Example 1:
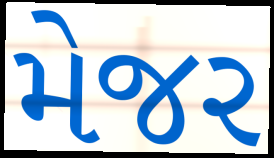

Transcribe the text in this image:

મેજર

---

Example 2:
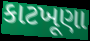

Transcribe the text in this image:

કાટખૂણા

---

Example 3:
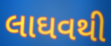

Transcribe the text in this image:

લાઘવથી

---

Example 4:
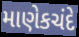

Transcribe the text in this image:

માણેકચંદે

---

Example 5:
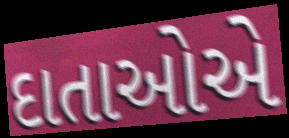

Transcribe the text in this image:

દાતાઓએ